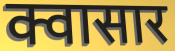
क्वासार